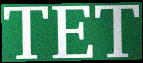
TET